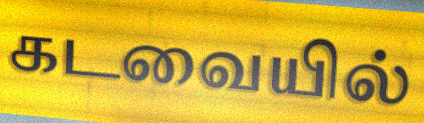
கடவையில்